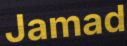
Jamad